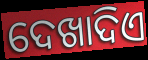
ଦେଖାଦିଏ